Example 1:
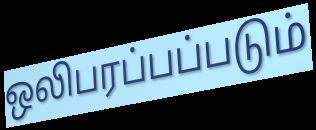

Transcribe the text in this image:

ஒலிபரப்பப்படும்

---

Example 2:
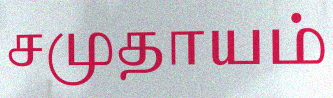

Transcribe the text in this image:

சமுதாயம்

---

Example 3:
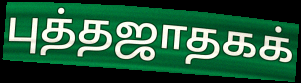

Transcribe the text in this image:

புத்தஜாதகக்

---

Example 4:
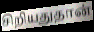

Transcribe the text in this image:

சிறியதுதான்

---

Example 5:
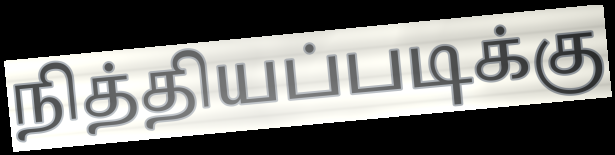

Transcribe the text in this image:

நித்தியப்படிக்கு